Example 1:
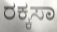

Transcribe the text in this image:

ರಕ್ಕಸಾ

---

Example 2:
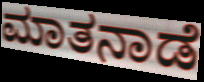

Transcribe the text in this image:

ಮಾತನಾಡೆ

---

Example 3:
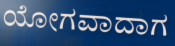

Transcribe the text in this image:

ಯೋಗವಾದಾಗ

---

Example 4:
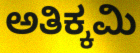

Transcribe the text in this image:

ಅತಿಕ್ಕಮಿ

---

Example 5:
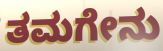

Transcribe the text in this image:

ತಮಗೇನು